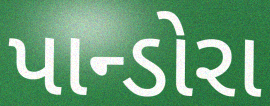
પાન્ડોરા